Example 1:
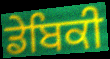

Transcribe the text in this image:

ਡੇਬਿਕੀ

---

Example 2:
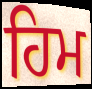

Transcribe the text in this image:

ਹਿਮ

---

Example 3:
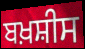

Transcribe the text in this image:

ਬਖ਼ਸ਼ੀਸ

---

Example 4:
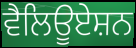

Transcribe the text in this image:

ਵੈਲਿਊਏਸ਼ਨ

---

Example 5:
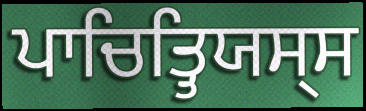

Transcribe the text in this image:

ਪਾਚਿਤ੍ਤਿਯਸ੍ਸ